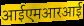
आईएमआरआई